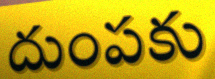
దుంపకు